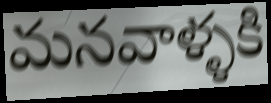
మనవాళ్ళకి